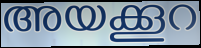
അയക്കൂറ